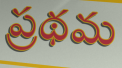
ప్రథమ